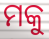
ମକୁ